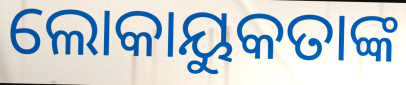
ଲୋକାୟୁକତାଙ୍କ